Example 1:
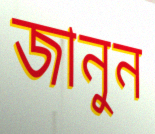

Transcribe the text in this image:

জানুন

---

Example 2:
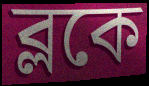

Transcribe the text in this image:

ব্লকে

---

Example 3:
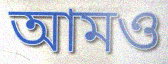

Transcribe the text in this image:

আমও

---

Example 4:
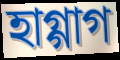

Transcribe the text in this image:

হাগ্গাগ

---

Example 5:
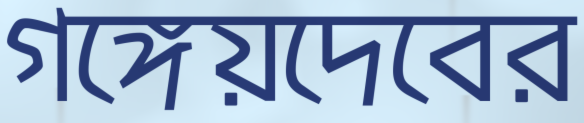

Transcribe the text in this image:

গঙ্গেয়দেবের